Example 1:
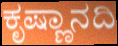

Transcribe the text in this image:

ಕೃಷ್ಣಾನದಿ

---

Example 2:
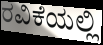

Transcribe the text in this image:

ರವಿಕೆಯಲ್ಲಿ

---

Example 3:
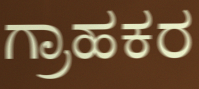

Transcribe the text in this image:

ಗ್ರಾಹಕರ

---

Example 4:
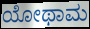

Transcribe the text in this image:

ಯೋಥಾಮ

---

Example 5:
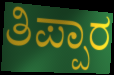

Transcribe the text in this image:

ತಿಪ್ಪಾರ